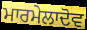
ਮਾਰਮੇਲਾਦੋਵ